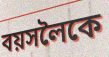
বয়সলৈকে